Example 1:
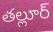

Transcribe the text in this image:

తల్లూర్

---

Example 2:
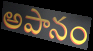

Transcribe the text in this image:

అపానం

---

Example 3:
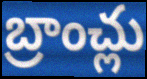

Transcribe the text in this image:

బ్రాంచ్లు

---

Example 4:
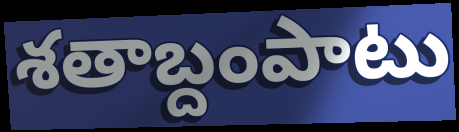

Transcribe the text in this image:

శతాబ్దంపాటు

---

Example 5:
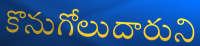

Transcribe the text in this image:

కొనుగోలుదారుని